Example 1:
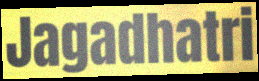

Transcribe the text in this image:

Jagadhatri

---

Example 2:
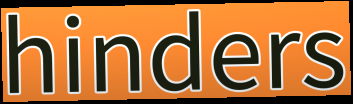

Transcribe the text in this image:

hinders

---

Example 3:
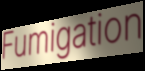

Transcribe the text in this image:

Fumigation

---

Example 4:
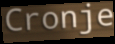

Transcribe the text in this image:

Cronje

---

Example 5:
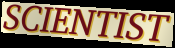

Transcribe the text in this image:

SCIENTIST